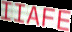
IIAFE